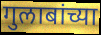
गुलाबांच्या